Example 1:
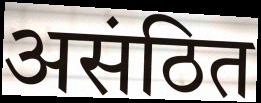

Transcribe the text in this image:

असंठित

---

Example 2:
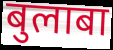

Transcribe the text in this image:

बुलाबा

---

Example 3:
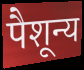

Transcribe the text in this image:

पैशून्य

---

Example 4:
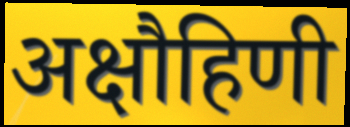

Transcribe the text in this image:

अक्षौहिणी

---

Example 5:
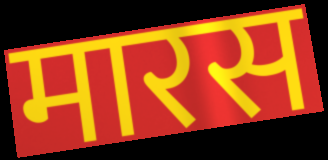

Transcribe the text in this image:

मारस